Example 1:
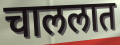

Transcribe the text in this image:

चाललात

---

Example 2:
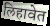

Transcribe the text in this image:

लिहावेत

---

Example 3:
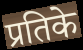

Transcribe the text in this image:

प्रतिके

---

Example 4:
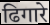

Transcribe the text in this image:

ढिगारे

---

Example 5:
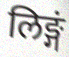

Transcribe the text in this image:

लिङ्गं